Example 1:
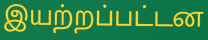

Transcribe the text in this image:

இயற்றப்பட்டன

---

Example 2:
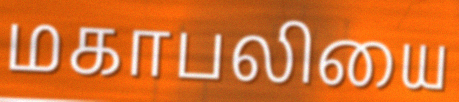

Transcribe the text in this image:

மகாபலியை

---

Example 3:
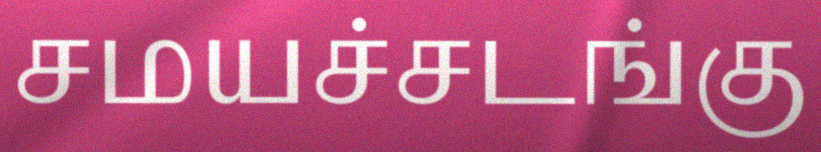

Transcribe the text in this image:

சமயச்சடங்கு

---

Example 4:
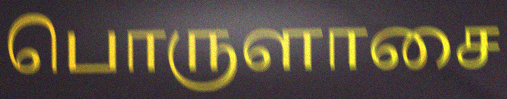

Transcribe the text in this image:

பொருளாசை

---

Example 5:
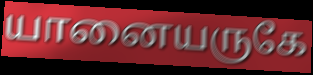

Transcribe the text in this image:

யானையருகே